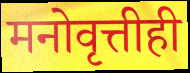
मनोवृत्तीही